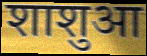
शाशुआ